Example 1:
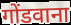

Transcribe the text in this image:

गोंडवाना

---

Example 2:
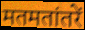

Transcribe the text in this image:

मतमतांतरें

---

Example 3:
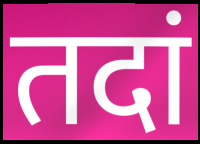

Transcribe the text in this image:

तदां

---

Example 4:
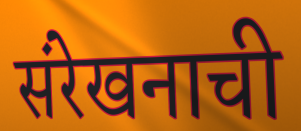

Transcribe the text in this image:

संरेखनाची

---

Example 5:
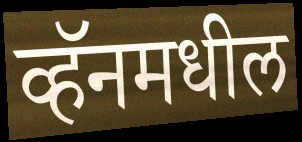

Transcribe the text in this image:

व्हॅनमधील